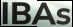
IBAs